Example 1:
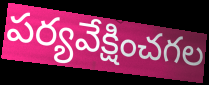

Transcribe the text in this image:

పర్యవేక్షించగల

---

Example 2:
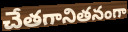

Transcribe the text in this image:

చేతగానితనంగా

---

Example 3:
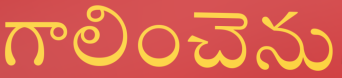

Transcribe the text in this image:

గాలించెను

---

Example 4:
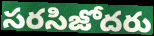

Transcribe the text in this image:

సరసిజోదరు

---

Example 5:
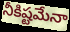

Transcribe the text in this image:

నీకిష్టమేనా